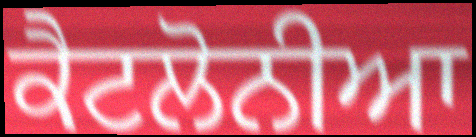
ਕੈਟਲੋਨੀਆ